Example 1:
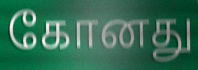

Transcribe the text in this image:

கோனது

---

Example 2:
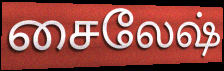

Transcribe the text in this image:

சைலேஷ்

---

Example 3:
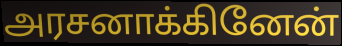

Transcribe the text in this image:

அரசனாக்கினேன்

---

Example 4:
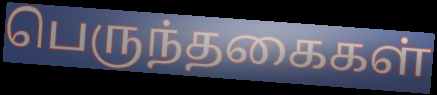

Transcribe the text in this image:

பெருந்தகைகள்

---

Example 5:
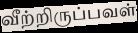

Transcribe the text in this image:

வீற்றிருப்பவள்